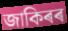
জাকিৰৰ